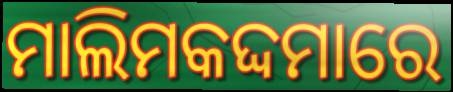
ମାଲିମକଦ୍ଦମାରେ